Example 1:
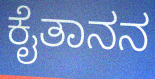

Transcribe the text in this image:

ಕೈತಾನನ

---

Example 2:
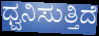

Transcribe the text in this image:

ಧ್ವನಿಸುತ್ತಿದೆ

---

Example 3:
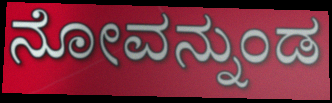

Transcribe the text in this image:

ನೋವನ್ನುಂಡ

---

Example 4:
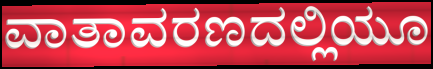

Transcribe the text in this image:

ವಾತಾವರಣದಲ್ಲಿಯೂ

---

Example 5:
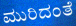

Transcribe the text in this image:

ಮುರಿದಂತೆ